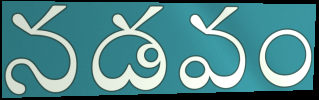
నడవం